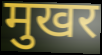
मुखर